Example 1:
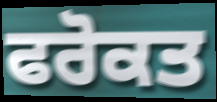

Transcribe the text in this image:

ਫਰੋਕਤ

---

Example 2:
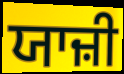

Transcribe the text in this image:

ਯਾਜ਼ੀ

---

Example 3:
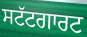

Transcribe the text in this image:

ਸਟੱਟਗਾਰਟ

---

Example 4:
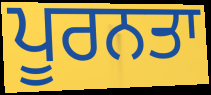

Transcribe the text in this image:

ਪੂਰਨਤਾ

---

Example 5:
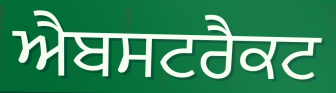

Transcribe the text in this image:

ਐਬਸਟਰੈਕਟ